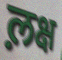
ल़क्ष